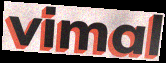
vimal